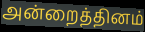
அன்றைத்தினம்